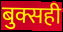
बुक्सही